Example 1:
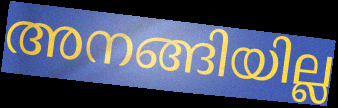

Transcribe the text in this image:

അനങ്ങിയില്ല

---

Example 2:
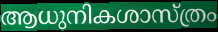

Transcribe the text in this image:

ആധുനികശാസ്ത്രം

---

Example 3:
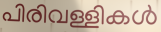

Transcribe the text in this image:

പിരിവള്ളികൾ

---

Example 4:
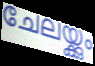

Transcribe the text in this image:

ചേലയ്ക്കും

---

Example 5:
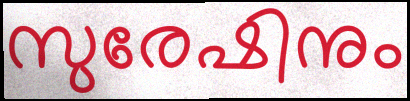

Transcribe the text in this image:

സുരേഷിനും